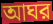
আঘর